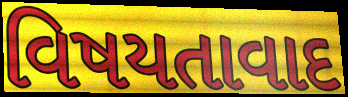
વિષયતાવાદ